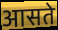
आसते